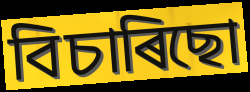
বিচাৰিছো